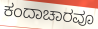
ಕಂದಾಚಾರವೂ